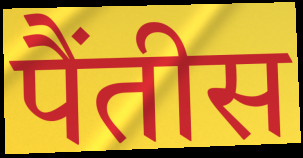
पैंतीस